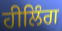
ਹੀਲਿੰਗ